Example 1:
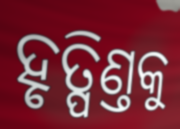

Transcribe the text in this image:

ହୃତ୍ପିଣ୍ତକୁ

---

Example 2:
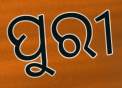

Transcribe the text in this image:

ପୁରୀ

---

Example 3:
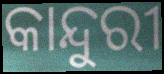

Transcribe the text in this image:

କାନ୍ଦୁରୀ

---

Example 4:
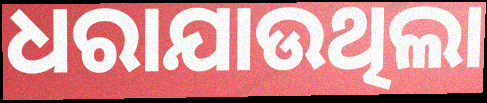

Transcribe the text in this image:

ଧରାଯାଉଥିଲା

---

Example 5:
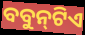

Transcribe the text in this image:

ବବୁନ୍‍ଟିଏ